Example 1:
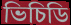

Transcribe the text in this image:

ভিচিডি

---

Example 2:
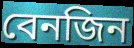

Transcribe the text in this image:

বেনজিন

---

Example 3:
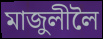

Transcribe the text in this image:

মাজুলীলৈ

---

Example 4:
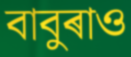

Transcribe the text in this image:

বাবুৰাও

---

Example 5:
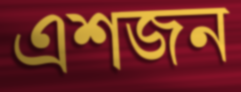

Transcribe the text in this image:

এশজন